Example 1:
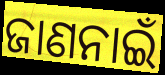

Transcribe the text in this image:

ଜାଣନାଇଁ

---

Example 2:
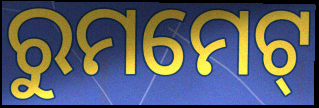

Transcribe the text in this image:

ରୁମମେଟ୍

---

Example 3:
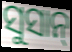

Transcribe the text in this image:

ସୁସାନ୍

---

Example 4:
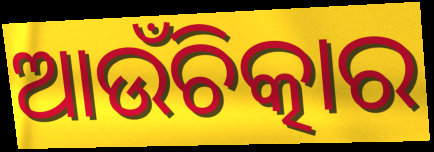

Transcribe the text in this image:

ଆଉଁଚିତ୍କାର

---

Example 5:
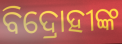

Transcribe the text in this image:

ବିଦ୍ରୋହୀଙ୍କ